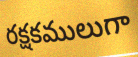
రక్షకములుగా